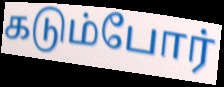
கடும்போர்